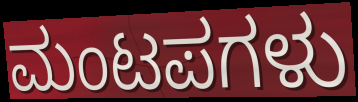
ಮಂಟಪಗಳು